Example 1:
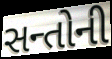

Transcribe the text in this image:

સન્તોની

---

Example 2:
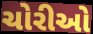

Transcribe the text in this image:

ચોરીઓ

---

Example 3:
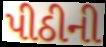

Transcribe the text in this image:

પીઠીની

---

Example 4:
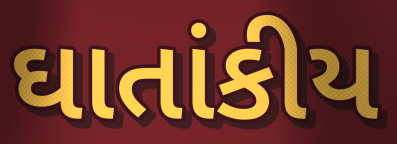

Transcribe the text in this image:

ઘાતાંકીય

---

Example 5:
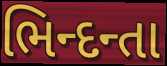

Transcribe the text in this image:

ભિન્દન્તા